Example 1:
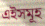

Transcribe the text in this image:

এইসমূহ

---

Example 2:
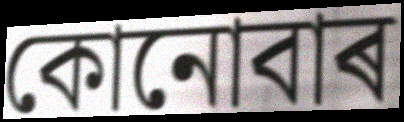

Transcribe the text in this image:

কোনোবাৰ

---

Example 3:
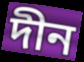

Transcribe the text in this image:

দীন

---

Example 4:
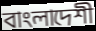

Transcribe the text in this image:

বাংলাদেশী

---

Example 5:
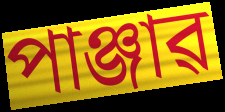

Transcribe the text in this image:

পাঞ্জাৱ